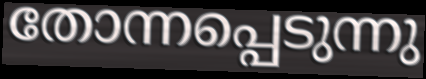
തോന്നപ്പെടുന്നു